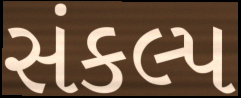
સંકલ્પ